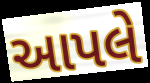
આપલે